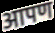
आपण